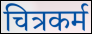
चित्रकर्म